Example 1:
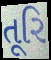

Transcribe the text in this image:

તૂરિ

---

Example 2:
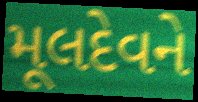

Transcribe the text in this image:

મૂલદેવને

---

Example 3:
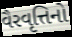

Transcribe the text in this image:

વૈરવૃત્તિનો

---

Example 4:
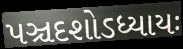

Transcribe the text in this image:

પઞ્ચદશોઽધ્યાયઃ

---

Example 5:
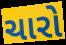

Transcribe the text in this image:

ચારો